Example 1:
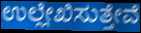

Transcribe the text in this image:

ಉಲ್ಲೇಖಿಸುತ್ತೇವೆ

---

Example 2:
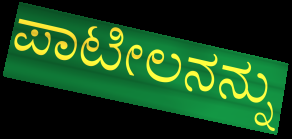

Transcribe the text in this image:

ಪಾಟೀಲನನ್ನು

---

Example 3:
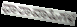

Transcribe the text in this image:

ಧಾರಾವಾಹಿಗಳ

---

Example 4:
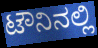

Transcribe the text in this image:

ಟೌನಿನಲ್ಲಿ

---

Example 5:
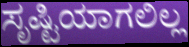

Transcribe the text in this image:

ಸೃಷ್ಟಿಯಾಗಲಿಲ್ಲ